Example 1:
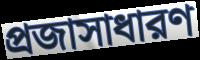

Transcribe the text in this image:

প্রজাসাধারণ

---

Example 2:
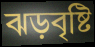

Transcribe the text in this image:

ঝড়বৃষ্টি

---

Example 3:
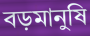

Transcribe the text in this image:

বড়মানুষি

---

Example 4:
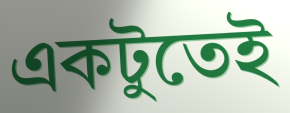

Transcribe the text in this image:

একটুতেই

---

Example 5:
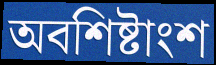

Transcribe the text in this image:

অবশিষ্টাংশ